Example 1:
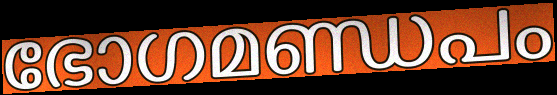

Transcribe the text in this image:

ഭോഗമണ്ഡപം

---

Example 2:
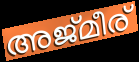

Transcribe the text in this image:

അജ്മീര്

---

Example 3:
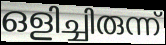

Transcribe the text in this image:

ഒളിച്ചിരുന്ന്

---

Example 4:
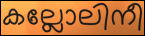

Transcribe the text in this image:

കല്ലോലിനീ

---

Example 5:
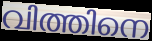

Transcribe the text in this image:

വിത്തിനെ